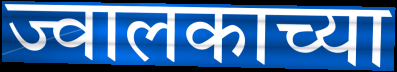
ज्वालकाच्या